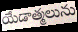
యేడాత్మలును